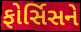
ફોર્સિસને